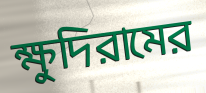
ক্ষুদিরামের